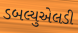
ડબલ્યુએલડી